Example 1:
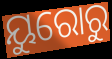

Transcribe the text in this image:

ୟୁରୋରୁ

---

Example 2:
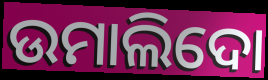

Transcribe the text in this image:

ଉମାଲିଦୋ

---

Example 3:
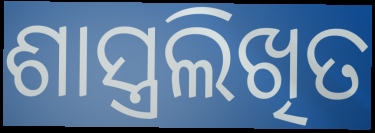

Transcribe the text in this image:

ଶାସ୍ତ୍ରଲିଖିତ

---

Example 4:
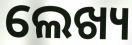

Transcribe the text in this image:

ଲେଖ୍ୟ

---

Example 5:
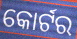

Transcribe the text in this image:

କୋର୍ଟର